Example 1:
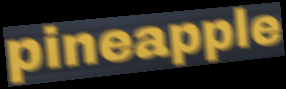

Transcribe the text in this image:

pineapple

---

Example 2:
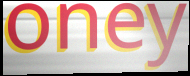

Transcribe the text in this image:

oney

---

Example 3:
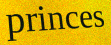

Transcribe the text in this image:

princes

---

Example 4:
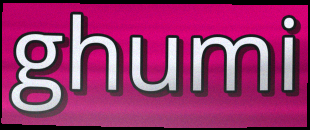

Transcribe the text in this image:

ghumi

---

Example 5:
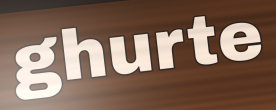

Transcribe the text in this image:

ghurte